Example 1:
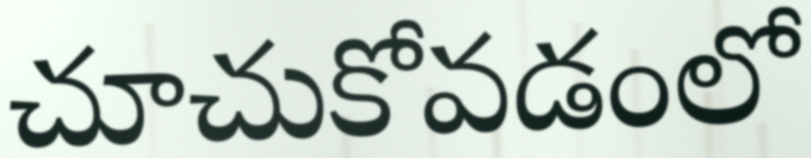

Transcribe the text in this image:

చూచుకోవడంలో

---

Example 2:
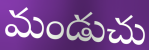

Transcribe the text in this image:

మండుచు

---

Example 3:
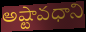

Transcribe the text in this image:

అష్టావధాని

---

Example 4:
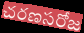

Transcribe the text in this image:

చరణసరోజ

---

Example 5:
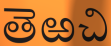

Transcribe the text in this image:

తెఱచి